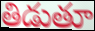
తిడుతూ